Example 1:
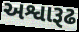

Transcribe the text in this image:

અશ્વારૂઢ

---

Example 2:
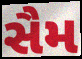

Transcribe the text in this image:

સૈમ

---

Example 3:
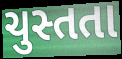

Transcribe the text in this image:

ચુસ્તતા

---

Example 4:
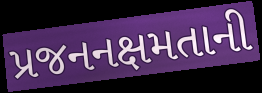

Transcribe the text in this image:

પ્રજનનક્ષમતાની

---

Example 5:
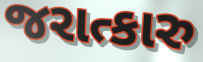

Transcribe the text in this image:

જરાત્કારુ